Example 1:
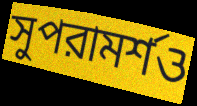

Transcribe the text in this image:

সুপরামর্শও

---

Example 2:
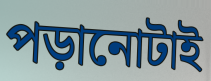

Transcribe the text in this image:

পড়ানোটাই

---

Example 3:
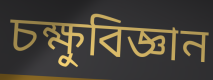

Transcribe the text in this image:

চক্ষুবিজ্ঞান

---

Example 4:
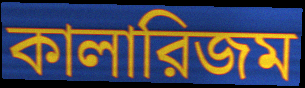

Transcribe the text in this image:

কালারিজম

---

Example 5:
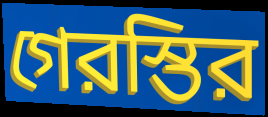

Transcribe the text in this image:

গেরস্তির